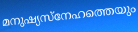
മനുഷ്യസ്നേഹത്തെയും